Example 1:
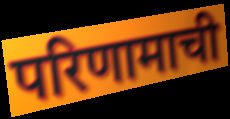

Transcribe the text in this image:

परिणामाची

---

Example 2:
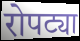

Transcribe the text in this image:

रोपट्या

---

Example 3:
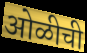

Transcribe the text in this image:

ओळीची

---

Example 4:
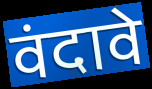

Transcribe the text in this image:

वंदावे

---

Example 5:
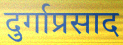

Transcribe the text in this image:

दुर्गाप्रसाद